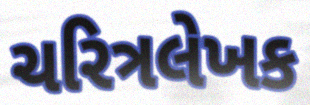
ચરિત્રલેખક